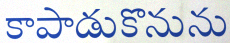
కాపాడుకొనును